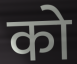
को